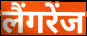
लैंगरेंज